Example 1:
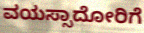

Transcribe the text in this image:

ವಯಸ್ಸಾದೋರಿಗೆ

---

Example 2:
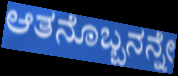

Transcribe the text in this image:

ಆತನೊಬ್ಬನನ್ನೇ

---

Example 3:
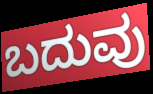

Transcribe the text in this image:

ಬದುವು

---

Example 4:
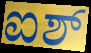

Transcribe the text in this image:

ಐಶ್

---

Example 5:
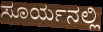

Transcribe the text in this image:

ಸೂರ್ಯನಲ್ಲಿ